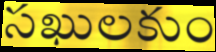
సఖులకుం